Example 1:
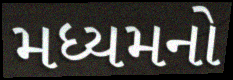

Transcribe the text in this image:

મધ્યમનો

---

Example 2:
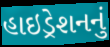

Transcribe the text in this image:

હાઇડ્રેશનનું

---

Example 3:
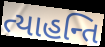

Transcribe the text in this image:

ત્યાહન્તિ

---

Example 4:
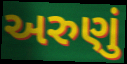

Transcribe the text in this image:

અરુણું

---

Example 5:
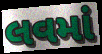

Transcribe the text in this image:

લવમાં